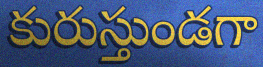
కురుస్తుండగా